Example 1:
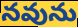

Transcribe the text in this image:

నవును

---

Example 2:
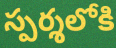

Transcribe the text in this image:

స్పర్శలోకి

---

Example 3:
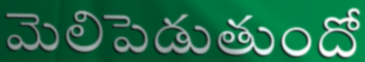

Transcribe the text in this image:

మెలిపెడుతుందో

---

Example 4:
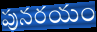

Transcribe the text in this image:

పునరయం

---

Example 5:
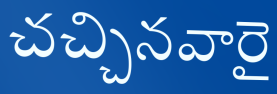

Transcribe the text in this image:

చచ్చినవారై